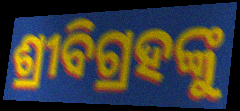
ଶ୍ରୀବିଗ୍ରହଙ୍କୁ